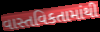
વાસ્તવિકતામાંથી